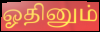
ஓதினும்